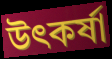
উৎকর্ষা